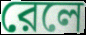
রেলে